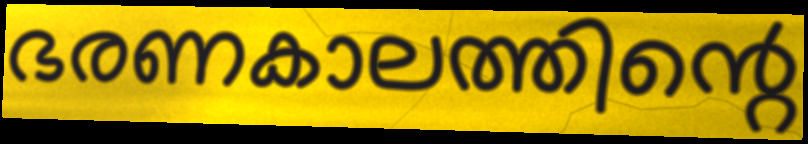
ഭരണകാലത്തിന്റെ